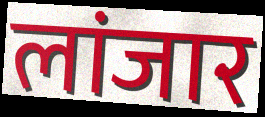
लांजार